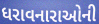
ધરાવનારાઓની